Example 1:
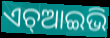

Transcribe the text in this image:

ଏଚ୍ଆଇଭି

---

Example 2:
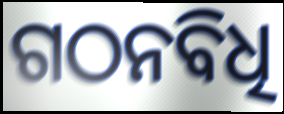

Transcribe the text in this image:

ଗଠନବିଧି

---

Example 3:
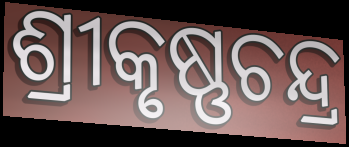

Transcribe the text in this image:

ଶ୍ରୀକୃଷ୍ଣଚନ୍ଦ୍ର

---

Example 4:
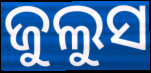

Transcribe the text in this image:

ଜୁଲୁସ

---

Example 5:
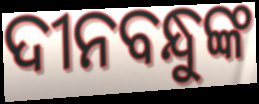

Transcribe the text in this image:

ଦୀନବନ୍ଧୁଙ୍କ